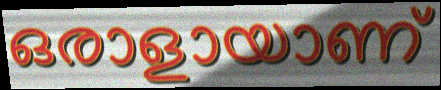
ഒരാളായാണ്